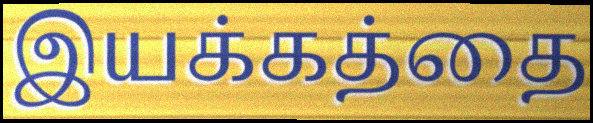
இயக்கத்தை